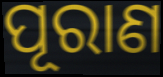
ପୂରାଣ